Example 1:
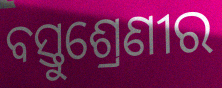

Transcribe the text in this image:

ବସ୍ତୁଶ୍ରେଣୀର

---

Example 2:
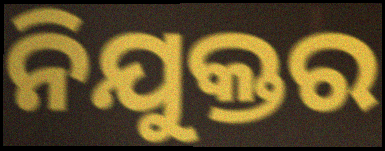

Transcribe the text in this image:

ନିଯୁକ୍ତର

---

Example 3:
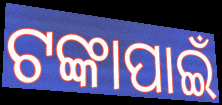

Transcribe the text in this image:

ଟଙ୍କାପାଇଁ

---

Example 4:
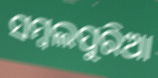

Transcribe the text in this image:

ସମ୍ବଲପୁରିଆ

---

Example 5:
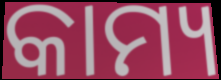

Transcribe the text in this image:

କାମ୍ୟ